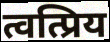
त्वत्प्रिय